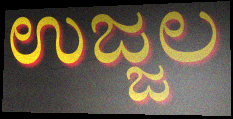
ಉಜ್ಜಲ